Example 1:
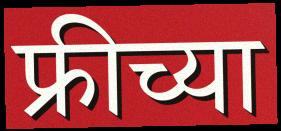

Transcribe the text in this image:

फ्रीच्या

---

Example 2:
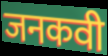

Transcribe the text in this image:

जनकवी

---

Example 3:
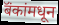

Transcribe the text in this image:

बॅंकांमधून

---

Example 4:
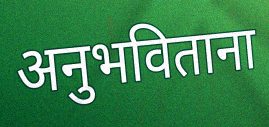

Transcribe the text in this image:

अनुभविताना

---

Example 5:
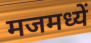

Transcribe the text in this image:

मजमध्यें